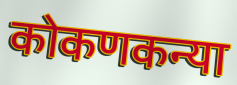
कोकणकन्या